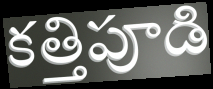
కత్తిపూడి